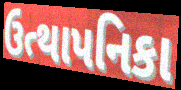
ઉત્થાપનિકા